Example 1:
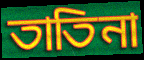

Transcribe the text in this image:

তাতিনা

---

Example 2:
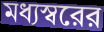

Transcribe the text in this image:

মধ্যস্বরের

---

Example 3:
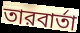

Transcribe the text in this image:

তারবার্তা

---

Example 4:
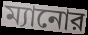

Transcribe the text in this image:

ম্যানোর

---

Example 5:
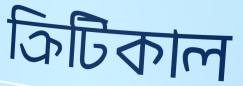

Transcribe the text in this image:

ক্রিটিকাল